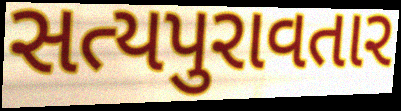
સત્યપુરાવતાર